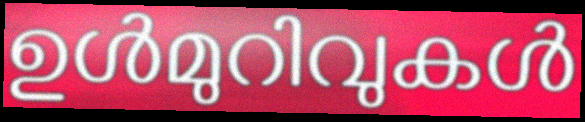
ഉൾമുറിവുകൾ